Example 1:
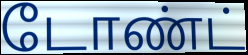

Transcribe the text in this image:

டோண்ட்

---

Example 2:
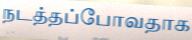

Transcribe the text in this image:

நடத்தப்போவதாக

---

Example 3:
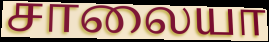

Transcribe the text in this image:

சாலையா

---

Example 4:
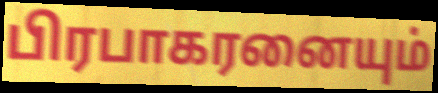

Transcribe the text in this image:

பிரபாகரனையும்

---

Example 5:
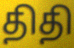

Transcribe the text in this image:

திதி